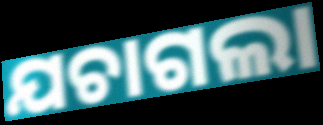
ଯଚାଗଲା